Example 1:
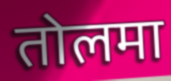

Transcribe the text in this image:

तोलमा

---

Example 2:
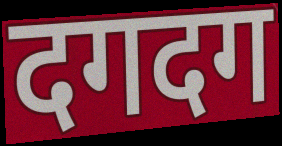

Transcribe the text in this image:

दगदग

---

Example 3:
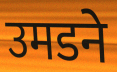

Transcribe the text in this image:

उमडने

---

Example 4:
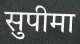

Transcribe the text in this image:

सुपीमा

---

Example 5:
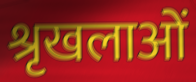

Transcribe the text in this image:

श्रृखलाओं